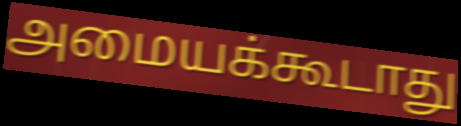
அமையக்கூடாது